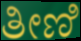
ತೀಣಿ